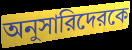
অনুসারিদেরকে